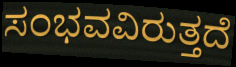
ಸಂಭವವಿರುತ್ತದೆ